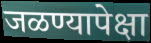
जळण्यापेक्षा